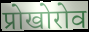
प्रोखोरोव